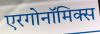
एरगोनॉमिक्स